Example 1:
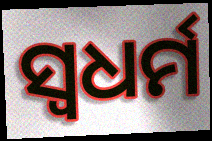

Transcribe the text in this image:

ସ୍ଵଧର୍ମ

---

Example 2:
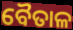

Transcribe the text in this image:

ବୈତାଳ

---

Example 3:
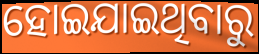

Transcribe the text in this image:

ହୋଇଯାଇଥିବାରୁ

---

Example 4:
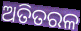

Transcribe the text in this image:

ଅତିତରଳ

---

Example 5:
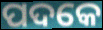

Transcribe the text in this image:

ପଦକେ